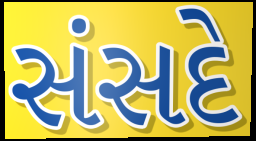
સંસદે